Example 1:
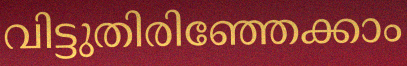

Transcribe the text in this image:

വിട്ടുതിരിഞ്ഞേക്കാം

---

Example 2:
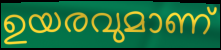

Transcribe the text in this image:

ഉയരവുമാണ്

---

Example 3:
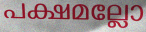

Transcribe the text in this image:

പക്ഷമല്ലോ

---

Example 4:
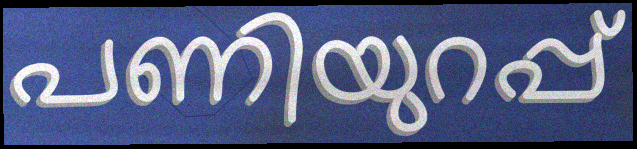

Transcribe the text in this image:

പണിയുറപ്പ്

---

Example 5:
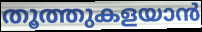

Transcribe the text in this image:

തൂത്തുകളയാൻ